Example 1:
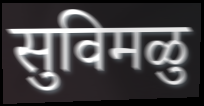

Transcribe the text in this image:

सुविमळु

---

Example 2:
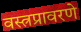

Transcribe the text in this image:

वस्त्रप्रावरणे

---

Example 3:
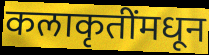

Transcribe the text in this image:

कलाकृतींमधून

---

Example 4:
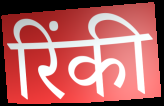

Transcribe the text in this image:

रिंकी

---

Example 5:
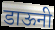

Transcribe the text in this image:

डाऊनी